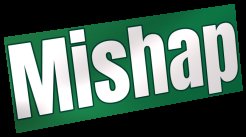
Mishap